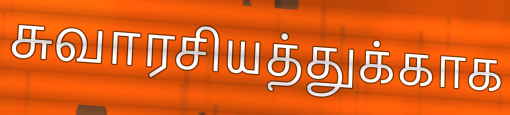
சுவாரசியத்துக்காக